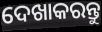
ଦେଖାକରନ୍ତୁ